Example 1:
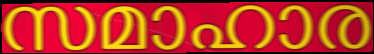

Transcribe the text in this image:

സമാഹാര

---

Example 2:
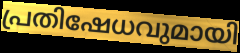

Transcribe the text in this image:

പ്രതിഷേധവുമായി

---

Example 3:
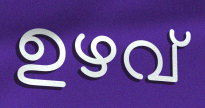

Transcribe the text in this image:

ഉഴവ്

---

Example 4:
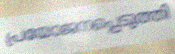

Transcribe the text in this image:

പ്രയോജനപ്പെടുത്തി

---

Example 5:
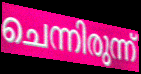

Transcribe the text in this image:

ചെന്നിരുന്ന്